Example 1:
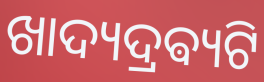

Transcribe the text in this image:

ଖାଦ୍ୟଦ୍ରଵ୍ୟଟି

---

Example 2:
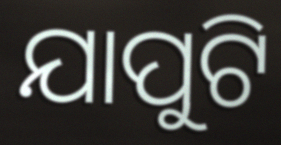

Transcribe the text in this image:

ଯାପୁଟି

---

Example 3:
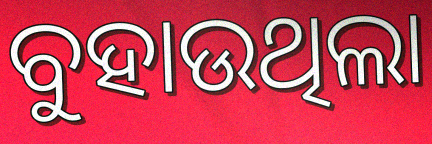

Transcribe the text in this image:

ବୁହାଉଥିଲା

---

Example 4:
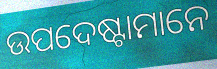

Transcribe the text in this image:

ଉପଦେଷ୍ଟାମାନେ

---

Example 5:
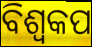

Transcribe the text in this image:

ବିଶ୍ବକପ